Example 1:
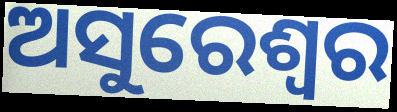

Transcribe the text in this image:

ଅସୁରେଶ୍ୱର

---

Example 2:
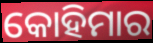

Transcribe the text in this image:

କୋହିମାର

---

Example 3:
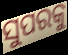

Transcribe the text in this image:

ସୁପରକୁ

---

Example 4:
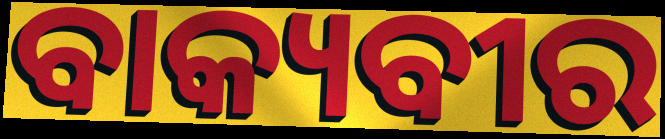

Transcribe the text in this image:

ବାକ୍ୟବୀର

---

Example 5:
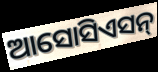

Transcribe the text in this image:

ଆସୋସିଏସନ୍